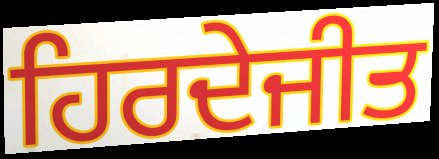
ਹਿਰਦੇਜੀਤ